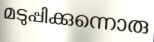
മടുപ്പിക്കുന്നൊരു